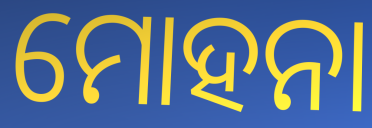
ମୋହନା